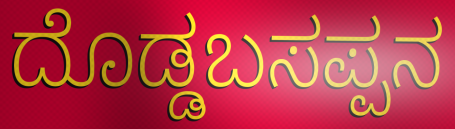
ದೊಡ್ಡಬಸಪ್ಪನ